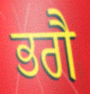
ਭਗੈ